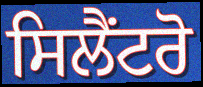
ਸਿਲੈਂਟਰੋ